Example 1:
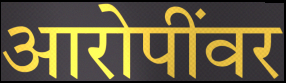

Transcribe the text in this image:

आरोपींवर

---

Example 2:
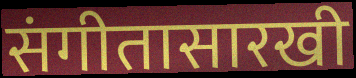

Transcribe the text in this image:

संगीतासारखी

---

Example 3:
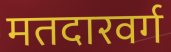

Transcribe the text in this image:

मतदारवर्ग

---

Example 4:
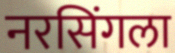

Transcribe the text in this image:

नरसिंगला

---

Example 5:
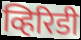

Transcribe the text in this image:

व्हिरिडी